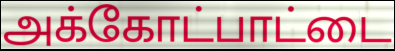
அக்கோட்பாட்டை